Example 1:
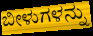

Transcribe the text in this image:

ಬೀಳುಗಳನ್ನು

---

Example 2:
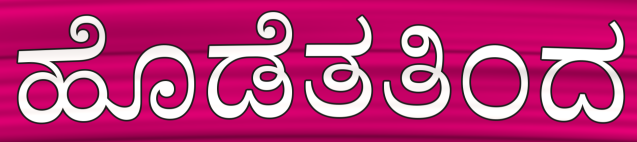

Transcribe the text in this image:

ಹೊಡೆತತಿಂದ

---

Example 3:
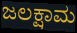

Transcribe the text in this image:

ಜಲಕ್ಷಾಮ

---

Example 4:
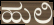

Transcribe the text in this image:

ಹುಲಿ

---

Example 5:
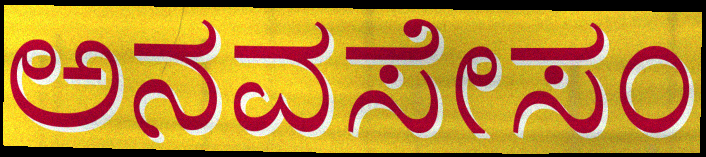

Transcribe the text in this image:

ಅನವಸೇಸಂ